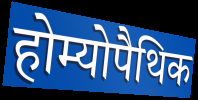
होम्‍योपैथिक